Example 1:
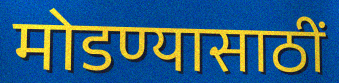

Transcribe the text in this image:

मोडण्यासाठीं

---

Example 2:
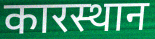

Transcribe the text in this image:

कारस्थान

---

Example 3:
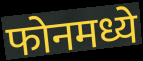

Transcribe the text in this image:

फोनमध्ये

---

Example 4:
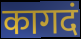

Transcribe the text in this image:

कागदं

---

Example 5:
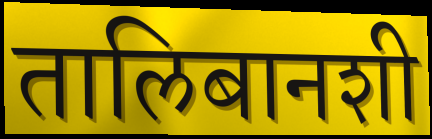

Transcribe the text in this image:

तालिबानशी